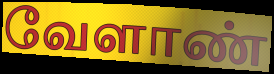
வேளாண்